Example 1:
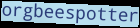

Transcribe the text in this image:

orgbeespotter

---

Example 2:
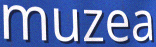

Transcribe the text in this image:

muzea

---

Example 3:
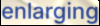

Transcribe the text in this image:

enlarging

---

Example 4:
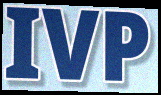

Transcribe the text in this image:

IVP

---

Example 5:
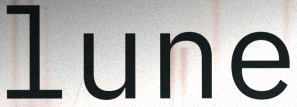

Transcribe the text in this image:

lune